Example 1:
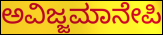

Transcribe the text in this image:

ಅವಿಜ್ಜಮಾನೇಪಿ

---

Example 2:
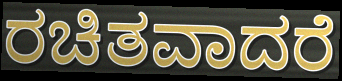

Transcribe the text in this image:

ರಚಿತವಾದರೆ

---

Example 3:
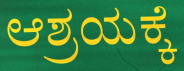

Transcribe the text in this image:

ಆಶ್ರಯಕ್ಕೆ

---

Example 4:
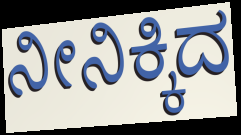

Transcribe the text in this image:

ನೀನಿಕ್ಕಿದ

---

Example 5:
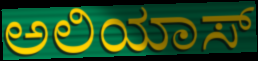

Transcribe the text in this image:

ಅಲಿಯಾಸ್